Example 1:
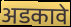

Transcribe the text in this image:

अडकावे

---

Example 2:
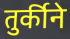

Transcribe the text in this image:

तुर्कीने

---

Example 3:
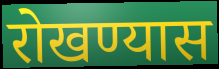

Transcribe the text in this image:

रोखण्यास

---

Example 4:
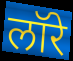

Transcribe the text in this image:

लॉरे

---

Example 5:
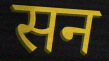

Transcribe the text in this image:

सन